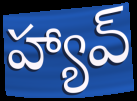
హ్యావ్